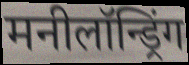
मनीलॉन्ड्रिंग